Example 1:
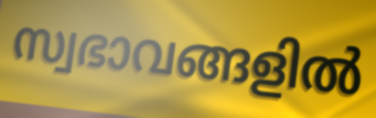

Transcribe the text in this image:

സ്വഭാവങ്ങളിൽ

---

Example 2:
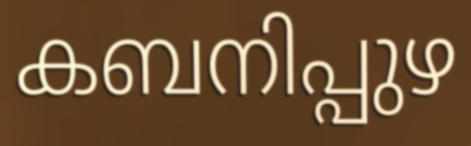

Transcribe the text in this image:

കബനിപ്പുഴ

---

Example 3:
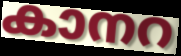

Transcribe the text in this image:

കാനറ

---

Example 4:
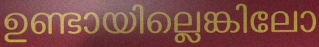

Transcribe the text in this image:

ഉണ്ടായില്ലെങ്കിലോ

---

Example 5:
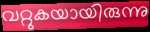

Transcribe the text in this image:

വറ്റുകയായിരുന്നു